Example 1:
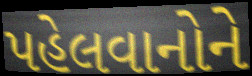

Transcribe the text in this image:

પહેલવાનોને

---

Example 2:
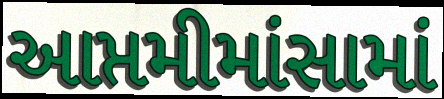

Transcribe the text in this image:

આપ્તમીમાંસામાં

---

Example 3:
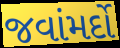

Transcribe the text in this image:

જવાંમર્દો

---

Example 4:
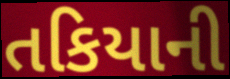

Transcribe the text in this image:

તકિયાની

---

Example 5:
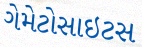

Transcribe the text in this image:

ગેમેટોસાઇટસ